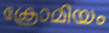
ക്രോമിയം